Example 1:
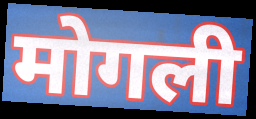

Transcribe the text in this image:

मोगली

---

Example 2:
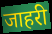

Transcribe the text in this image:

जाहरी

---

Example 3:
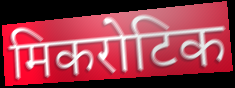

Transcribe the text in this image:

मिकरोटिक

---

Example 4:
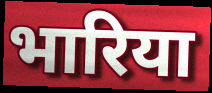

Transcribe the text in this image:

भारिया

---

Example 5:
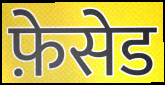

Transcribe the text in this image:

फ़ेसेड